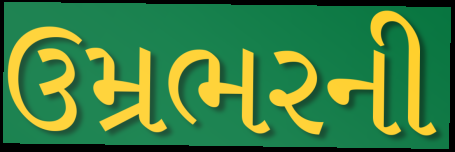
ઉમ્રભરની